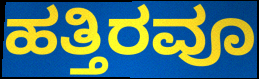
ಹತ್ತಿರವೂ